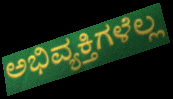
ಅಭಿವ್ಯಕ್ತಿಗಳೆಲ್ಲ